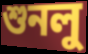
শুনলু